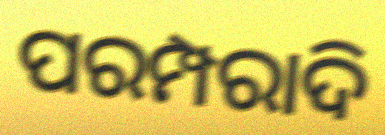
ପରମ୍ପରାଦି